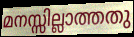
മനസ്സില്ലാത്തതു